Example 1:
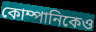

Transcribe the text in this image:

কোম্পানিকেও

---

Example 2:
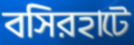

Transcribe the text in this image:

বসিরহাটে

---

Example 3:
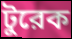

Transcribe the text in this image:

টুরেক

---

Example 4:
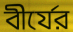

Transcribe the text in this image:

বীর্যের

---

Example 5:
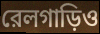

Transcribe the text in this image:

রেলগাড়িও